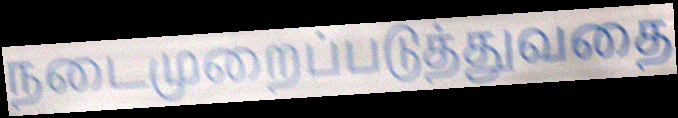
நடைமுறைப்படுத்துவதை